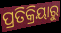
ପ୍ରତିକ୍ରିୟାରୁ